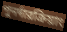
পুনর্দারক্রিয়াং